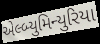
એલ્બ્યુમિન્યુરિયા